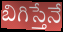
బిగిస్తేనే